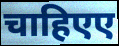
चाहिएए